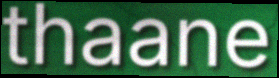
thaane